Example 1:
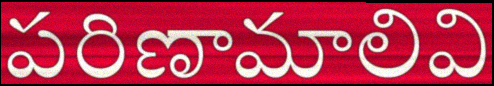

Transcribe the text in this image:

పరిణామాలివి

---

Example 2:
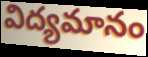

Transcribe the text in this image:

విద్యమానం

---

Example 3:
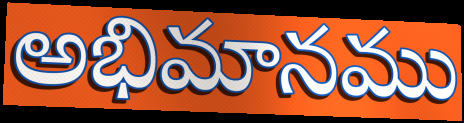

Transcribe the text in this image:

అభిమానము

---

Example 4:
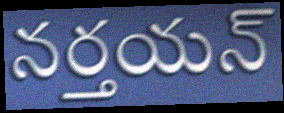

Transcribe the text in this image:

నర్తయన్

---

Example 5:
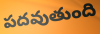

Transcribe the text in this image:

పదవుతుంది